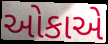
ઓકાએ